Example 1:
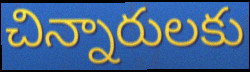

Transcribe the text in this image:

చిన్నారులకు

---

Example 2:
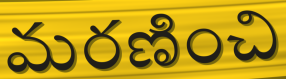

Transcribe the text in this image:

మరణించి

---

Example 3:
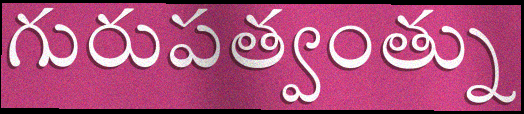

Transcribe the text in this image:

గురుపత్వంత్ను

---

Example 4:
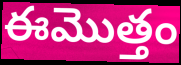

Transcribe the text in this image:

ఈమొత్తం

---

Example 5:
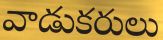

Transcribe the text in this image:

వాడుకరులు